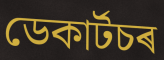
ডেকাৰ্টচৰ